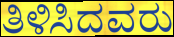
ತಿಳಿಸಿದವರು